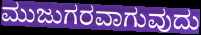
ಮುಜುಗರವಾಗುವುದು